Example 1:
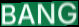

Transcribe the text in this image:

BANG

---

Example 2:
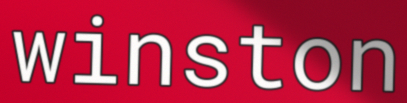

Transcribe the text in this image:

winston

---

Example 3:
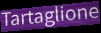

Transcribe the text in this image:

Tartaglione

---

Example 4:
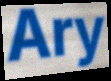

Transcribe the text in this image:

Ary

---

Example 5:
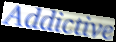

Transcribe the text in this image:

Addictive